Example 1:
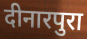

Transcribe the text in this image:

दीनारपुरा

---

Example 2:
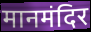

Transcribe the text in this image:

मानमंदिर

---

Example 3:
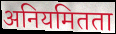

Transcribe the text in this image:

अनियमितता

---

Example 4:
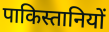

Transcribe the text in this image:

पाकिस्तानियों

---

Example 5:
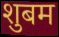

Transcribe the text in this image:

शुबम